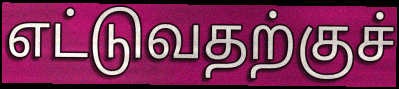
எட்டுவதற்குச்